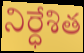
నిర్ధేశిత